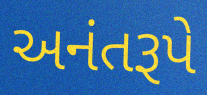
અનંતરૂપે